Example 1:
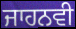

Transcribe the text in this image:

ਜਾਹਨਵੀ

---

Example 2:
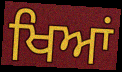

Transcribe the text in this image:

ਖਿਆਂ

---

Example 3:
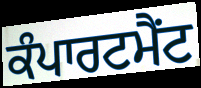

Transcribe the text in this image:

ਕੰਪਾਰਟਮੈਂਟ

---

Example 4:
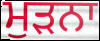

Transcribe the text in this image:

ਮੁਡ਼ਨਾ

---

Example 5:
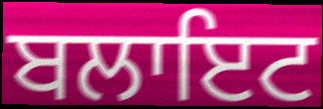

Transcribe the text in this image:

ਬਲਾਇਟ